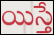
యిస్తే